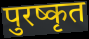
पुरष्कृत